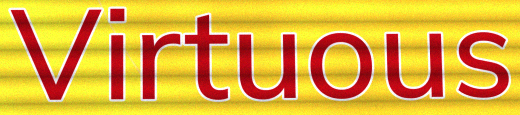
Virtuous